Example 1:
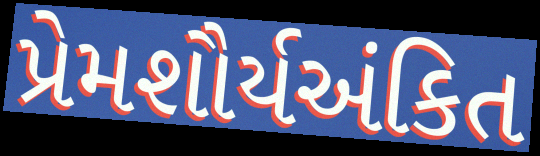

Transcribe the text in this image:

પ્રેમશૌર્યઅંકિત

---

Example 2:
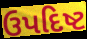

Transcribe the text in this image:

ઉપદિષ્ટ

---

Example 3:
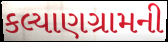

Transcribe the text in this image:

કલ્યાણગ્રામની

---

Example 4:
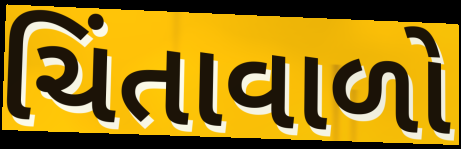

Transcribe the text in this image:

ચિંતાવાળો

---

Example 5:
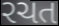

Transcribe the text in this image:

રચત